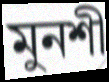
মুনশী